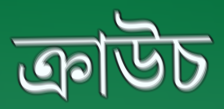
ক্রাউচ